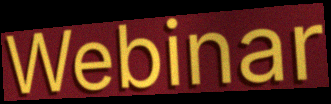
Webinar